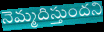
నెమ్మదిస్తుందని